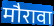
मौरावा